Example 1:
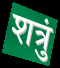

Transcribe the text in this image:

शत्रुं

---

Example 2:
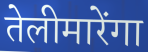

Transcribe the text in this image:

तेलीमारेंगा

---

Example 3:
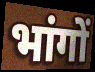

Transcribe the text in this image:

भांगों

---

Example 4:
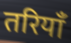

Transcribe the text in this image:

तरियाँ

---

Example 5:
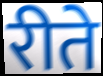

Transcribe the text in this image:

रीते